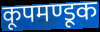
कूपमण्डूक